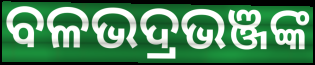
ବଳଭଦ୍ରଭଞ୍ଜଙ୍କ